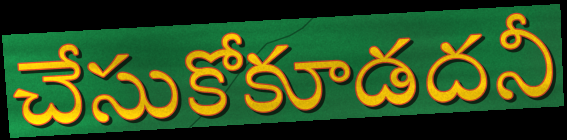
చేసుకోకూడదనీ